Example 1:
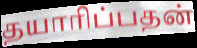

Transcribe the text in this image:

தயாரிப்பதன்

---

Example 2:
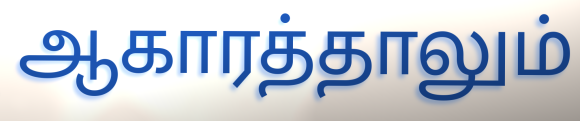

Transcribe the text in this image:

ஆகாரத்தாலும்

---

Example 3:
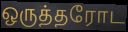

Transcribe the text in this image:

ஒருத்தரோட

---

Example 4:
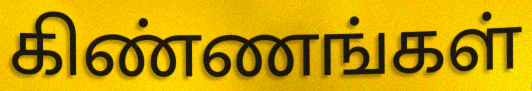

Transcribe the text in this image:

கிண்ணங்கள்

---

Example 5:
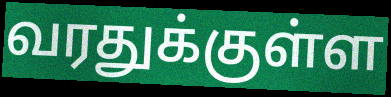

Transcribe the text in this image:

வரதுக்குள்ள